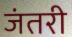
जंतरी